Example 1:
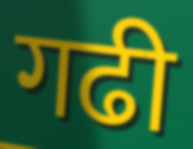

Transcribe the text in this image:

गढी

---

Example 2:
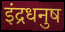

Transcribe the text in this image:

इंद्रधनुष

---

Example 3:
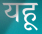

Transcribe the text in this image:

यहू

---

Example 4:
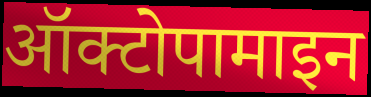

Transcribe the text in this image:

ऑक्टोपामाइन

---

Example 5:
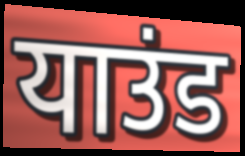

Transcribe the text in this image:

याउंड